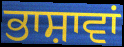
ਭਾਸ਼ਾਵਾਂ